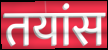
तयांस